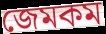
জেমকম